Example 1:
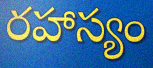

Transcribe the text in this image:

రహాస్యం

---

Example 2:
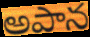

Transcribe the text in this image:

అపాన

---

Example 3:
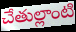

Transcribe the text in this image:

చేతుల్లాంటి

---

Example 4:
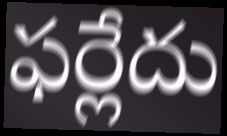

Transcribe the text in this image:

ఫర్లేదు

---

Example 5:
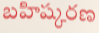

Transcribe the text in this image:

బహిష్కరణ